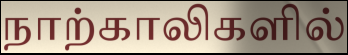
நாற்காலிகளில்